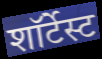
शॉर्टेस्ट